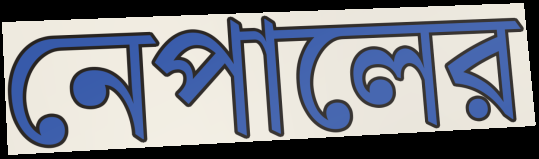
নেপালের